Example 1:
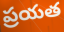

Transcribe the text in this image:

ప్రయత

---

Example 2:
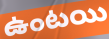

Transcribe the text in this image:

ఉంటయి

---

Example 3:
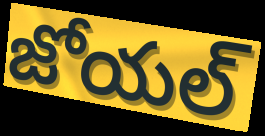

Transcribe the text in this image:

జోయల్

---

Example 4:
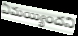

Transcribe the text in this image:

ఏమయ్యిందని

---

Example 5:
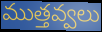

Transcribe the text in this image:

ముత్తవ్వలు